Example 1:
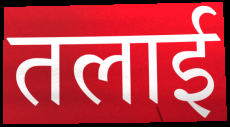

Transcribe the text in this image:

तलाई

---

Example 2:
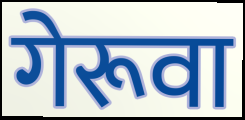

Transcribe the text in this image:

गेरूवा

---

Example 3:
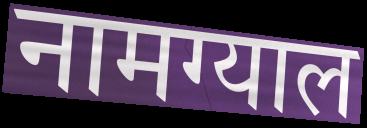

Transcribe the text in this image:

नामग्याल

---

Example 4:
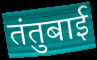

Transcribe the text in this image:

तंतुबाई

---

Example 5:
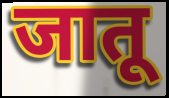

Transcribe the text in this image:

जातू